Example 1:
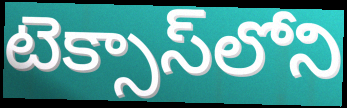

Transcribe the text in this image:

టెక్సాస్‌లోని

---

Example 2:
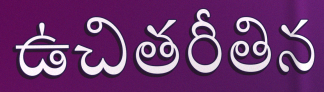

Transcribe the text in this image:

ఉచితరీతిన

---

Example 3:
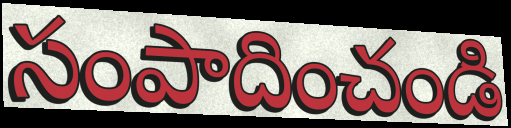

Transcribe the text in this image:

సంపాదించండి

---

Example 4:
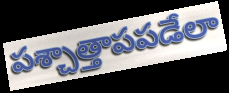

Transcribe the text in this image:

పశ్చాత్తాపపడేలా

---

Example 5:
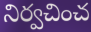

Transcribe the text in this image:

నిర్వచించ